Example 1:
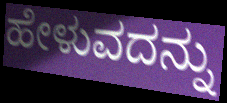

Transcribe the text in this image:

ಹೇಳುವದನ್ನು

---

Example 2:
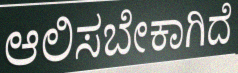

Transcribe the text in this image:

ಆಲಿಸಬೇಕಾಗಿದೆ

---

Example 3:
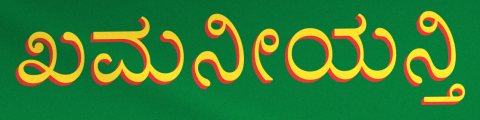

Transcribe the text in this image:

ಖಮನೀಯನ್ತಿ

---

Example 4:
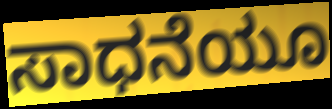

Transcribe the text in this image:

ಸಾಧನೆಯೂ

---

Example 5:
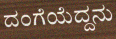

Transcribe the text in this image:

ದಂಗೆಯೆದ್ದನು